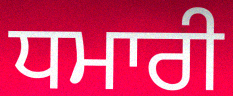
ਧਮਾਰੀ